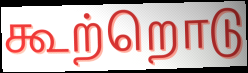
கூற்றொடு